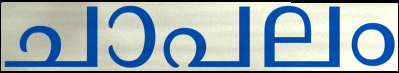
ചാപലം